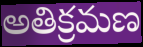
అతిక్రమణ